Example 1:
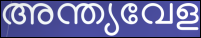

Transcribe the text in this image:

അന്ത്യവേള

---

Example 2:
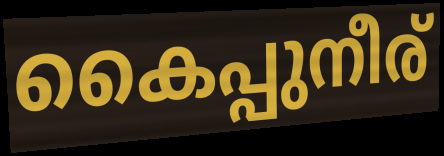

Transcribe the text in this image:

കൈപ്പുനീര്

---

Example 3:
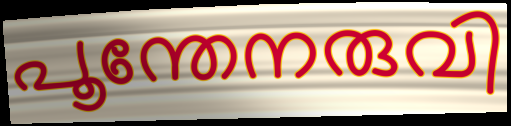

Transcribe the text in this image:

പൂന്തേനരുവി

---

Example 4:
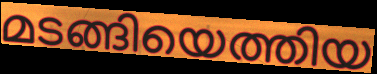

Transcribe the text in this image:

മടങ്ങിയെത്തിയ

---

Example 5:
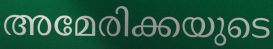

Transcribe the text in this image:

അമേരിക്കയുടെ